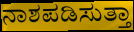
ನಾಶಪಡಿಸುತ್ತಾ